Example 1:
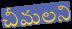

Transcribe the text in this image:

చీమలని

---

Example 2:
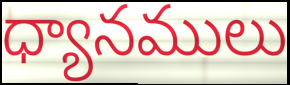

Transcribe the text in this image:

ధ్యానములు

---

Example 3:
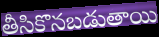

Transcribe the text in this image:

తీసికొనబడుతాయి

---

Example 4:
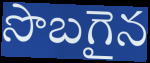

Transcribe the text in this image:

సొబగైన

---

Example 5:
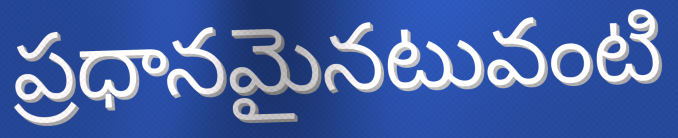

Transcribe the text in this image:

ప్రధానమైనటువంటి